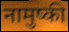
नामुष्की